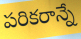
పరికరాన్నే